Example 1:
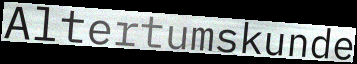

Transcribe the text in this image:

Altertumskunde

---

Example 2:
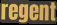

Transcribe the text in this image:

regent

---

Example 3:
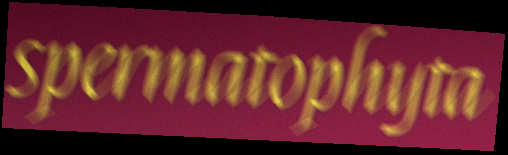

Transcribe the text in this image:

spermatophyta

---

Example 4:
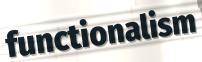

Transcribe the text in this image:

functionalism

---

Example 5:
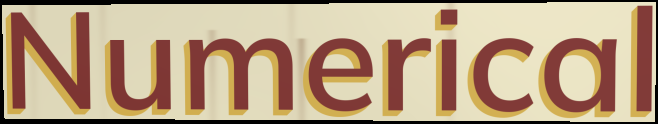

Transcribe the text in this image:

Numerical